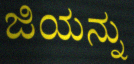
ಜಿಯನ್ನು